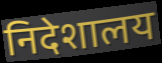
निदेशालय